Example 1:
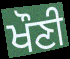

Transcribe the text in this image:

ਖੌਣੀ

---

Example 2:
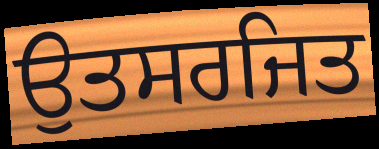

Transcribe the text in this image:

ਉਤਸਰਜਿਤ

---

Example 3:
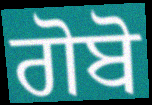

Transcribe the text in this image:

ਗੋਬੋ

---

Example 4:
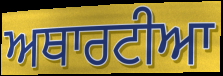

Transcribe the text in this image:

ਅਥਾਰਟੀਆ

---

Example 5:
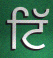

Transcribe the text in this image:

ਟਿੱ